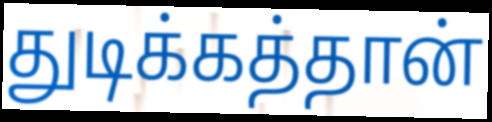
துடிக்கத்தான்